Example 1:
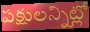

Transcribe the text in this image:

పక్షులన్నిట్లో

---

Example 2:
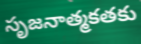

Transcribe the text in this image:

సృజనాత్మకతకు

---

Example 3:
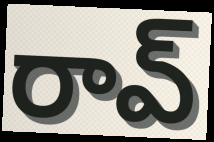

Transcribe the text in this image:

రావ్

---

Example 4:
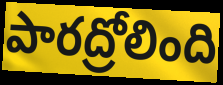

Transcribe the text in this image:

పారద్రోలింది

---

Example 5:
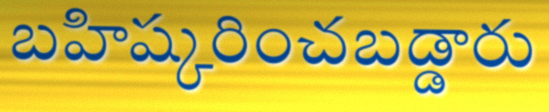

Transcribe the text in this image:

బహిష్కరించబడ్డారు